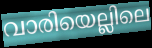
വാരിയെല്ലിലെ